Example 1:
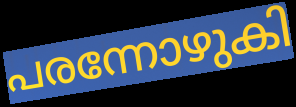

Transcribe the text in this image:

പരന്നോഴുകി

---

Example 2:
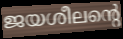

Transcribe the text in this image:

ജയശീലന്റെ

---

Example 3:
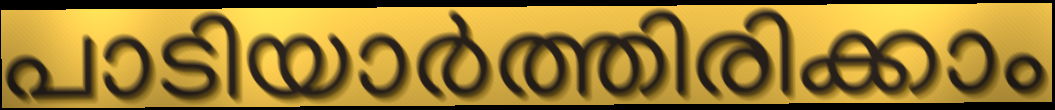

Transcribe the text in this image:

പാടിയാർത്തിരിക്കാം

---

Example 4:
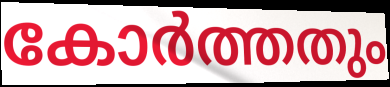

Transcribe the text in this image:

കോർത്തതും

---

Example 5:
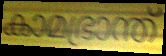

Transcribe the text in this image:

കാമഭ്രാന്ത്